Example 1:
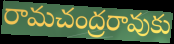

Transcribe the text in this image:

రామచంద్రరావుకు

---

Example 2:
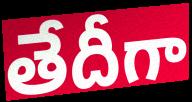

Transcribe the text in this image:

తేదీగా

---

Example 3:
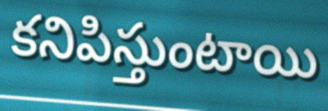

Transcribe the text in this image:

కనిపిస్తుంటాయి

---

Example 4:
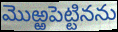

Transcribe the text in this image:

మొఱ్ఱపెట్టినను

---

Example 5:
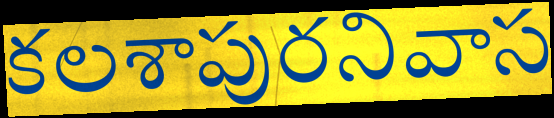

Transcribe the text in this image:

కలశాపురనివాస